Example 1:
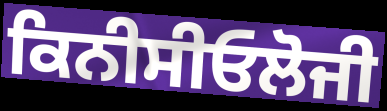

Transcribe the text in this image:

ਕਿਨੀਸੀਓਲੋਜੀ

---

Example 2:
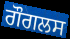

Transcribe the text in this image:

ਗੌਗਲਸ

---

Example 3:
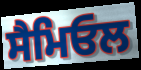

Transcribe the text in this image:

ਸੈਮਿਓਲ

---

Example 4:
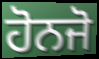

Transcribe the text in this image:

ਹੋਨਜੋ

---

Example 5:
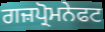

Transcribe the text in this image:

ਗਜ਼ਪ੍ਰੋਮਨੇਫਟ